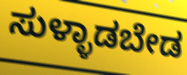
ಸುಳ್ಳಾಡಬೇಡ